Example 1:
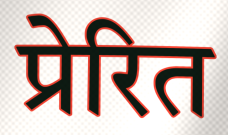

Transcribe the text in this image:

प्रेरित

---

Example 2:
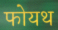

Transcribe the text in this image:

फोयथ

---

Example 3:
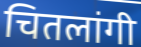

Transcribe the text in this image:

चितलांगी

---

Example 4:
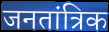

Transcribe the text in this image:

जनतांत्रिक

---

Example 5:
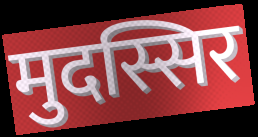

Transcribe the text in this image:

मुदस्सिर